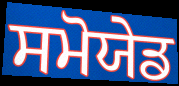
ਸਮੋਯੇਡ